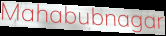
Mahabubnagar